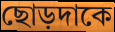
ছোড়দাকে